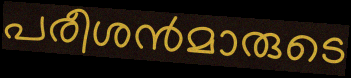
പരീശൻമാരുടെ